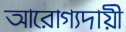
আরোগ্যদায়ী